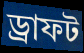
ড্রাফট